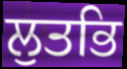
ਲੁਤਭਿ